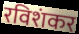
रविशंकर